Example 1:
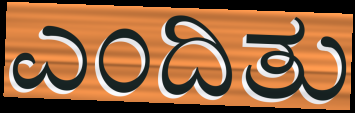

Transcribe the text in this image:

ಎಂದಿತು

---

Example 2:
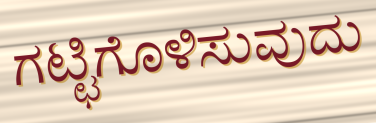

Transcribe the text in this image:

ಗಟ್ಟಿಗೊಳಿಸುವುದು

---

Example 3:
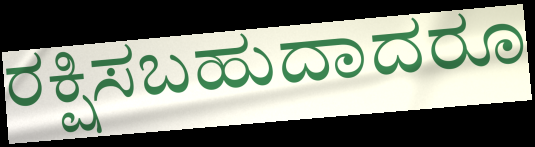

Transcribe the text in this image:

ರಕ್ಷಿಸಬಹುದಾದರೂ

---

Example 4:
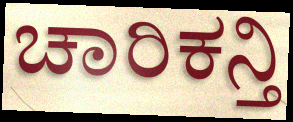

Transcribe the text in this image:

ಚಾರಿಕನ್ತಿ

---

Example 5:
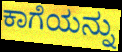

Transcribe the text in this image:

ಕಾಗೆಯನ್ನು